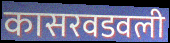
कासरवडवली